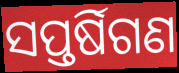
ସପ୍ତର୍ଷିଗଣ